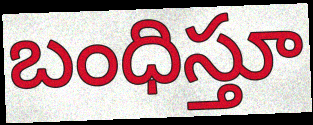
బంధిస్తూ